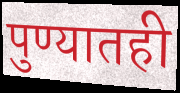
पुण्यातही